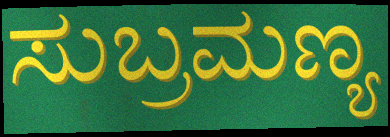
ಸುಬ್ರಮಣ್ಯ